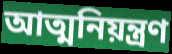
আত্মনিয়ন্ত্ৰণ